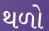
થળો